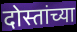
दोस्तांच्या